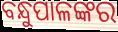
ବନ୍ଧୁପାଳଙ୍କର